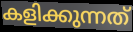
കളിക്കുന്നത്